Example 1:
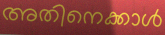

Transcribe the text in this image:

അതിനെക്കാൾ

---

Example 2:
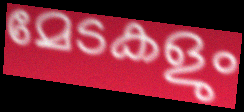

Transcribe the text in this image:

മേടകളും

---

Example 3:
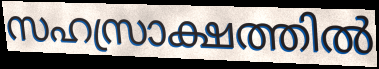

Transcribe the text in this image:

സഹസ്രാക്ഷത്തിൽ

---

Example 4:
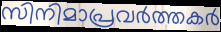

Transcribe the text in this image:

സിനിമാപ്രവർത്തകർ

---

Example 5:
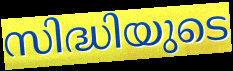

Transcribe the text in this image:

സിദ്ധിയുടെ